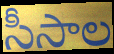
సీసాల